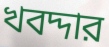
খবদ্দার